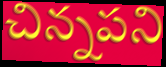
చిన్నపని